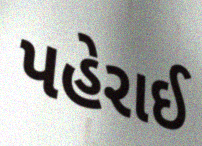
પહેરાઈ